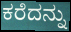
ಕರೆದನ್ನು